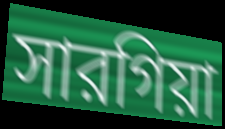
সারগিয়া